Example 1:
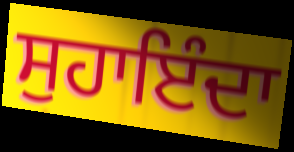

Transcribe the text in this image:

ਸੁਹਾਇੰਦਾ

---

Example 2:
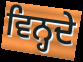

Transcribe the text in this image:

ਵਿਨ੍ਹਦੇ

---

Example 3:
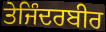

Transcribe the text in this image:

ਤੇਜਿੰਦਰਬੀਰ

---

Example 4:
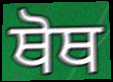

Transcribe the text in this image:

ਥੋਥ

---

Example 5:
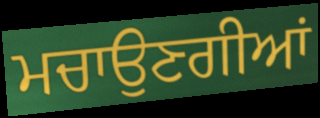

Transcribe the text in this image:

ਮਚਾਉਣਗੀਆਂ